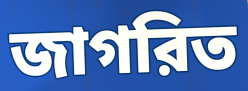
জাগরিত